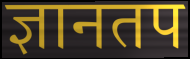
ज्ञानतप